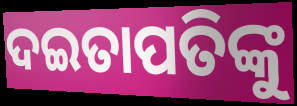
ଦଇତାପତିଙ୍କୁ